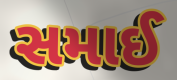
સમાઈ